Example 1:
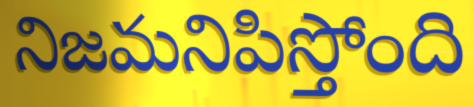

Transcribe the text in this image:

నిజమనిపిస్తోంది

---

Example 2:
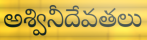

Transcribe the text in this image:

అశ్వినీదేవతలు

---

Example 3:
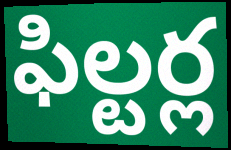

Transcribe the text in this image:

ఫిల్టర్ల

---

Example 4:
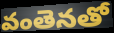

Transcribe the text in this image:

వంతెనతో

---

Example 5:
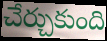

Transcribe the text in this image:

చేర్చుకుంది